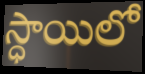
స్ధాయిలో